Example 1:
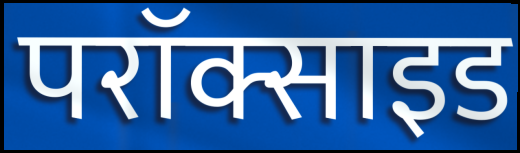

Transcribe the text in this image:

परॉक्साइड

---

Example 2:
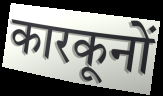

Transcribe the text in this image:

कारकूनों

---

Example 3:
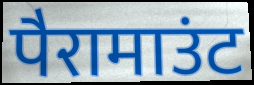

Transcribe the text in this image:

पैरामाउंट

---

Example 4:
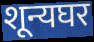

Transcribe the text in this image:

शून्यघर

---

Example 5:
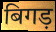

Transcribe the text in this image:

बिगड़